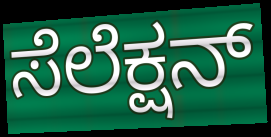
ಸೆಲೆಕ್ಷನ್